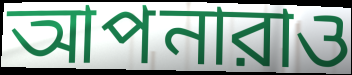
আপনারাও